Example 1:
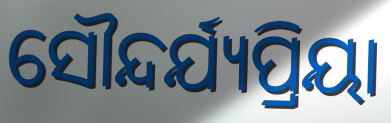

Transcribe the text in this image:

ସୌନ୍ଦର୍ଯ୍ୟପ୍ରିୟା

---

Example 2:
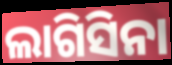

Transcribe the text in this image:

ଲାଗିସିନା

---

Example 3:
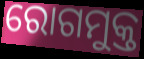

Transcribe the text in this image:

ରୋଗମୁକ୍ତ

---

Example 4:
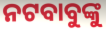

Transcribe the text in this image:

ନଟବାବୁଙ୍କୁ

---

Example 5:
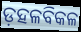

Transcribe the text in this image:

ଡ଼ହଳବିକଳ